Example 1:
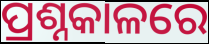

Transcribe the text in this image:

ପ୍ରଶ୍ନକାଳରେ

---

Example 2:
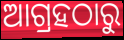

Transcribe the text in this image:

ଆଗ୍ରହଠାରୁ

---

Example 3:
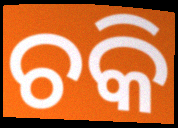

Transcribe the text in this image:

ଚକି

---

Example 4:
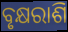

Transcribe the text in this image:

ବୃକ୍ଷରାଶି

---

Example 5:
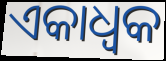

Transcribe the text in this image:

ଏକାଧ୍ଵକ